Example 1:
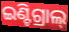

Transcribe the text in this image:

ଇଣ୍ଟିଗ୍ରାଲ୍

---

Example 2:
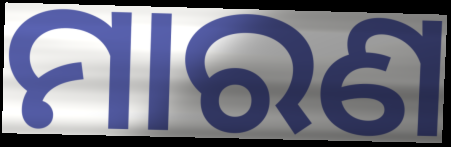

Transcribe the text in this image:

ମାରଣ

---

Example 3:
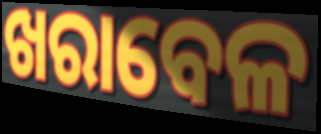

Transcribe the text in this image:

ଖରାବେଳ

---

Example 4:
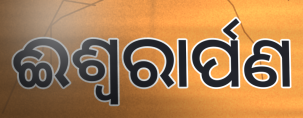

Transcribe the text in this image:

ଈଶ୍ୱରାର୍ପଣ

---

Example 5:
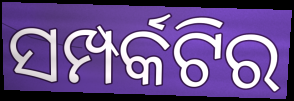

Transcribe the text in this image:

ସମ୍ପର୍କଟିର